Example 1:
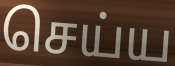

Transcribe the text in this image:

செய்ய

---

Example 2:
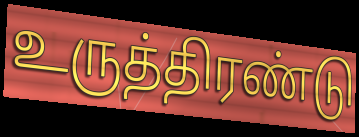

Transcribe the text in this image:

உருத்திரண்டு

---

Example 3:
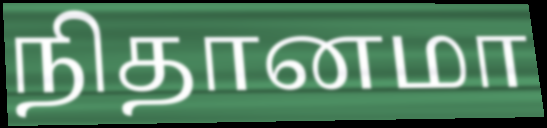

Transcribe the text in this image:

நிதானமா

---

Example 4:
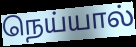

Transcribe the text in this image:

நெய்யால்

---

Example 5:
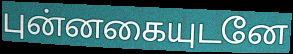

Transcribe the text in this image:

புன்னகையுடனே